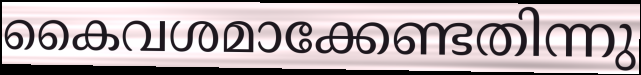
കൈവശമാക്കേണ്ടതിന്നു